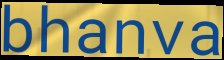
bhanva